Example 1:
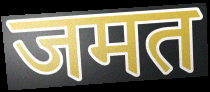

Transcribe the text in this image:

जमत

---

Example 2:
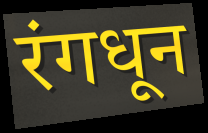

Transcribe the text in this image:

रंगधून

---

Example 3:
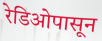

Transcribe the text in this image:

रेडिओपासून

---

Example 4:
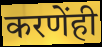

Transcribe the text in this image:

करणेंही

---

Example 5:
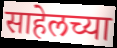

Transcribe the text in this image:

साहेलच्या